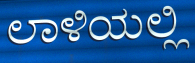
ಲಾಳಿಯಲ್ಲಿ